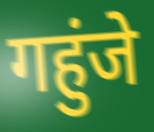
गहुंजे